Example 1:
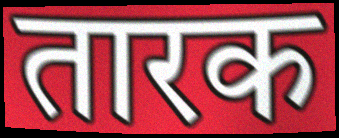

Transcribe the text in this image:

तारक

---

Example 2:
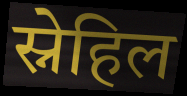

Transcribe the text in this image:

स्नेहिल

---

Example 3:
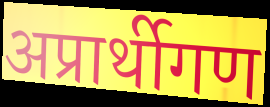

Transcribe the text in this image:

अप्रार्थीगण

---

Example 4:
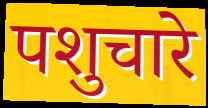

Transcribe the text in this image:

पशुचारे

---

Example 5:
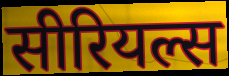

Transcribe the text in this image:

सीरियल्स